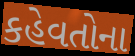
કહેવતોના